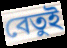
বেতুই